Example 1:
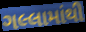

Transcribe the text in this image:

ગલ્લામાંથી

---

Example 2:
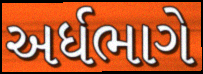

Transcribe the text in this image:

અર્ધભાગે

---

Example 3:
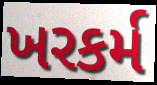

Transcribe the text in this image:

ખરકર્મ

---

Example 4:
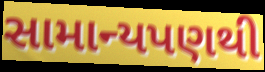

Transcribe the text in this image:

સામાન્યપણથી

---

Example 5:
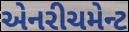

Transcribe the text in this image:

એનરીચમેન્ટ